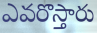
ఎవరొస్తారు